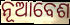
ନୂଆବେଶ